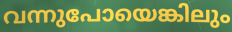
വന്നുപോയെങ്കിലും